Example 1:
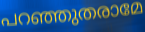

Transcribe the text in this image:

പറഞ്ഞുതരാമേ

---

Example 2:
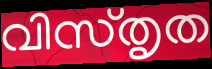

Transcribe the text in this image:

വിസ്തൃത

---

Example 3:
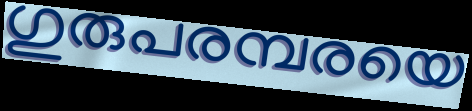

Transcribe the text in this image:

ഗുരുപരമ്പരയെ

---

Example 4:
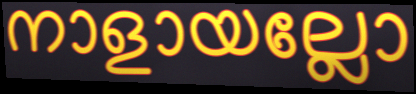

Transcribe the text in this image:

നാളായല്ലോ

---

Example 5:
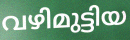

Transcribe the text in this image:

വഴിമുട്ടിയ